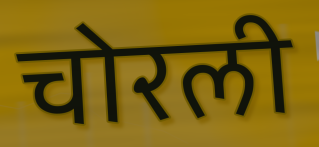
चोरली